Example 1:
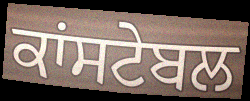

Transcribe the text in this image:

ਕਾਂਸਟੇਬਲ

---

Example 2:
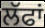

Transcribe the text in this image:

ਲੱਫਾਂ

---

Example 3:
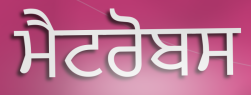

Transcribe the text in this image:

ਮੈਟਰੋਬਸ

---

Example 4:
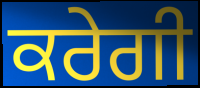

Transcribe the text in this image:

ਕਰੇਗੀ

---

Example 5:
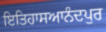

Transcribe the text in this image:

ਇਤਿਹਾਸਆਨੰਦਪੁਰ